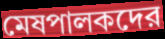
মেষপালকদের